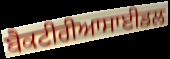
ਬੈਕਟੀਰੀਆਸਾਈਡਲ